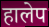
हालेप